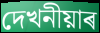
দেখনীয়াৰ